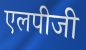
एलपीजी